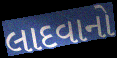
લાદવાનો